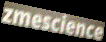
zmescience